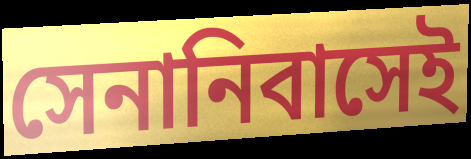
সেনানিবাসেই